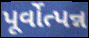
પૂર્વોત્પન્ન